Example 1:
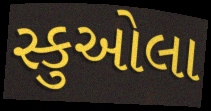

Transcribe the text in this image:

સ્કુઓલા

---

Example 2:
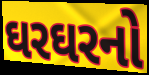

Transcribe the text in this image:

ઘરઘરનો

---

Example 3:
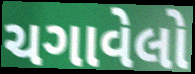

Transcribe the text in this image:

ચગાવેલો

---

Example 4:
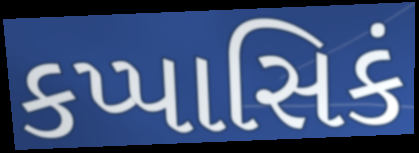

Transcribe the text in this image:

કપ્પાસિકં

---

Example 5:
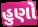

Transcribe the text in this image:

હુણો